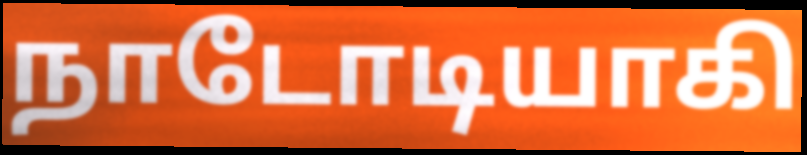
நாடோடியாகி